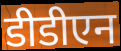
डीडीएन